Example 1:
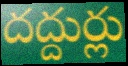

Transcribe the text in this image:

దద్దుర్లు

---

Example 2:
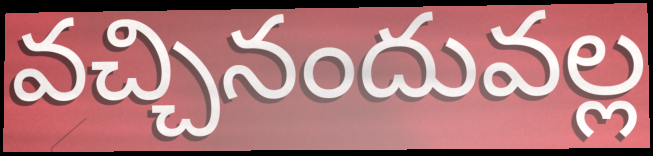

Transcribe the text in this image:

వచ్చినందువల్ల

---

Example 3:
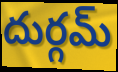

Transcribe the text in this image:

దుర్గమ్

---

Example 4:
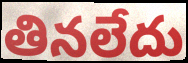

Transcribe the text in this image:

తినలేదు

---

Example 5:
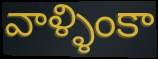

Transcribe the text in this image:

వాళ్ళింకా